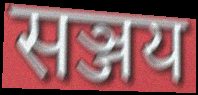
सञ्जय